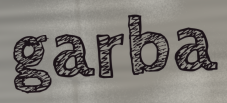
garba